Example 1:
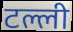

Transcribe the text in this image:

टल्ली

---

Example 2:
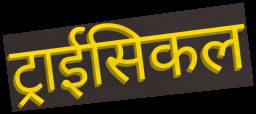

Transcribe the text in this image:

ट्राईसिकल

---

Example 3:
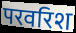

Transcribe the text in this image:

परवरिश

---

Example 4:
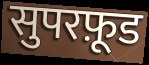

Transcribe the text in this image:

सुपरफ़ूड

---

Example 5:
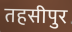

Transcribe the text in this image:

तहसीपुर